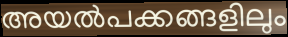
അയൽപക്കങ്ങളിലും